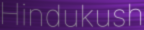
Hindukush